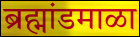
ब्रह्मांडमाळा